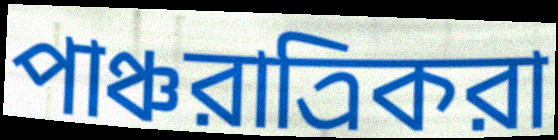
পাঞ্চরাত্রিকরা